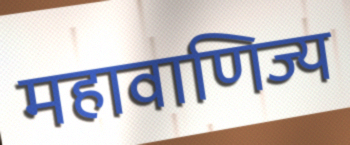
महावाणिज्‍य